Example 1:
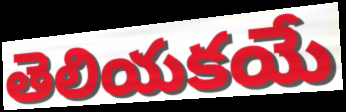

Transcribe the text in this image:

తెలియకయే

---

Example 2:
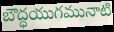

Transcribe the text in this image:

బౌద్ధయుగమునాటి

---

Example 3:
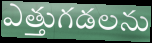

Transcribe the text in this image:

ఎత్తుగడలను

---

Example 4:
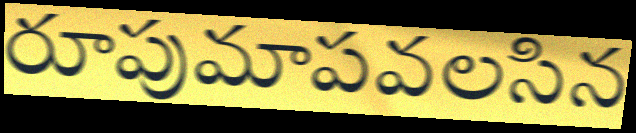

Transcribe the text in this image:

రూపుమాపవలసిన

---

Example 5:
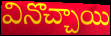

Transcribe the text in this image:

వినొచ్చాయి